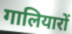
गालियारों